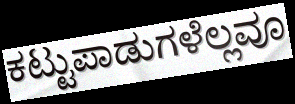
ಕಟ್ಟುಪಾಡುಗಳೆಲ್ಲವೂ